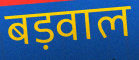
बड़वाल